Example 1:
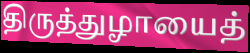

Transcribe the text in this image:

திருத்துழாயைத்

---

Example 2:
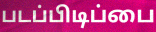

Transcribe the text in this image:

படப்பிடிப்பை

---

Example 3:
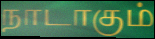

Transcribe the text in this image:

நாடாகும்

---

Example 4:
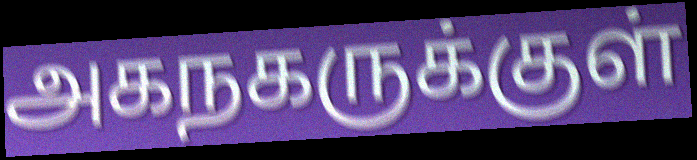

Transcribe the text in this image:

அகநகருக்குள்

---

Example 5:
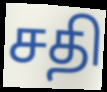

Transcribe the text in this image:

சதி